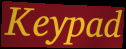
Keypad